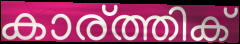
കാര്ത്തിക്